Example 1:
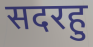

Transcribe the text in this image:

सदरहु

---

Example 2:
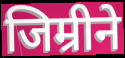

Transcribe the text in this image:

जिम्रीने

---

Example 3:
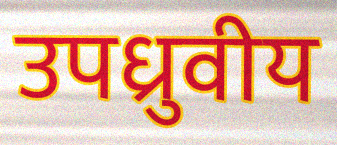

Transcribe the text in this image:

उपध्रुवीय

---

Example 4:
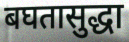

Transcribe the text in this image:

बघतासुद्धा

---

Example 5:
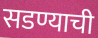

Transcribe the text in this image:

सडण्याची